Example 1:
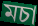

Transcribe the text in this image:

মচা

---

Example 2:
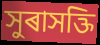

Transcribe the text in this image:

সুৰাসক্তি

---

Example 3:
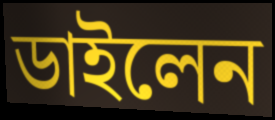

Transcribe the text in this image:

ডাইলেন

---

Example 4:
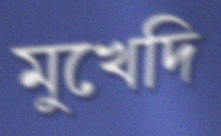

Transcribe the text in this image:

মুখেদি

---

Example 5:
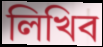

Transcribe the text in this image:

লিখিব